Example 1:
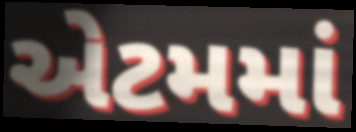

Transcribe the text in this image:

એટમમાં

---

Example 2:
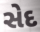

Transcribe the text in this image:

સેદ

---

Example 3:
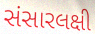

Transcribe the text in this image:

સંસારલક્ષી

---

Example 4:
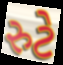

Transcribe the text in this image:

રુટે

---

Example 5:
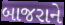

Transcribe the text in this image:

બાજરાને